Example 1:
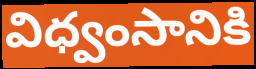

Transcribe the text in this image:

విధ్వంసానికి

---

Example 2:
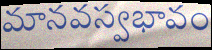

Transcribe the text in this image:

మానవస్వభావం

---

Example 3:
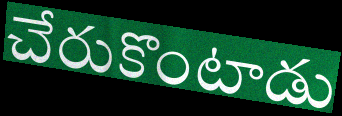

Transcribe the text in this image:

చేరుకొంటాడు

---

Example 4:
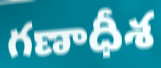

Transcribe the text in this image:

గణాధీశ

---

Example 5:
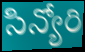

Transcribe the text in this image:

సిన్యోరి